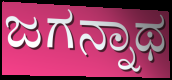
ಜಗನ್ನಾಥ